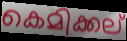
കെമിക്കല്